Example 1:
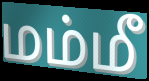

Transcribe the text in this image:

மம்மீ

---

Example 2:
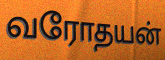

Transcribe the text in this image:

வரோதயன்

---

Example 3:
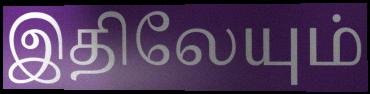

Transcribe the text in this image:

இதிலேயும்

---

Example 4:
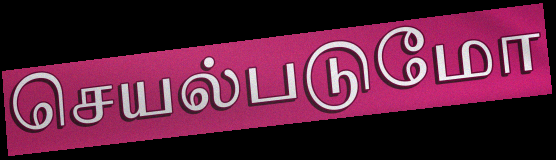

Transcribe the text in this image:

செயல்படுமோ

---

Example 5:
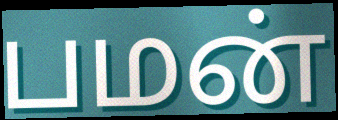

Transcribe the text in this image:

பமன்